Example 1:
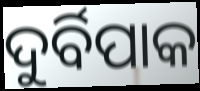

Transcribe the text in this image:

ଦୁର୍ବିପାକ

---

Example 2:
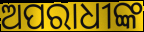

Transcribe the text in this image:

ଅପରାଧୀଙ୍କ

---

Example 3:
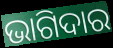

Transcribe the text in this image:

ଭାଗିଦାର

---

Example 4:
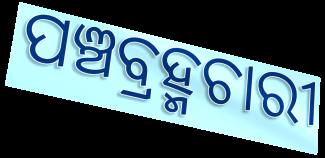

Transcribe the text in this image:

ପଞ୍ଚବ୍ରହ୍ମଚାରୀ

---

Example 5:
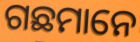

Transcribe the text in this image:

ଗଛମାନେ